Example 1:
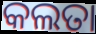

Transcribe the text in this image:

କଲତା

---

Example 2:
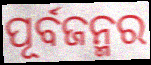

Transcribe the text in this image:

ପୂର୍ବଜନ୍ମର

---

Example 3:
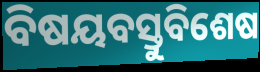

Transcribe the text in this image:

ବିଷୟବସ୍ତୁବିଶେଷ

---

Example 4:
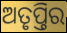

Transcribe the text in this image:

ଅତୃପ୍ତିର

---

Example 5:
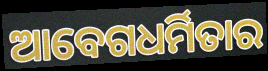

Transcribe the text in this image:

ଆବେଗଧର୍ମିତାର